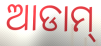
ଆଡାମ୍